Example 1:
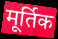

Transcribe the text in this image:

मूर्तिक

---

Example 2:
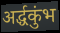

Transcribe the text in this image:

अर्द्धकुंभ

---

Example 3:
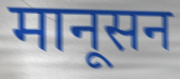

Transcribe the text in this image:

मानूसन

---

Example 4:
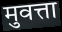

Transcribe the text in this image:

मुवत्ता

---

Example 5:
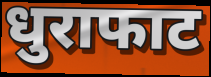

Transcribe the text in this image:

धुराफाट